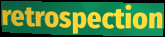
retrospection